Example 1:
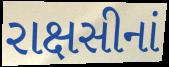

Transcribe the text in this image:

રાક્ષસીનાં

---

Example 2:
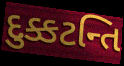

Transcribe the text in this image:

દુક્કટન્તિ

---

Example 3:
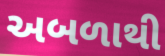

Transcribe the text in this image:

અબળાથી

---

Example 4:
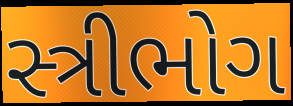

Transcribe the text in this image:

સ્ત્રીભોગ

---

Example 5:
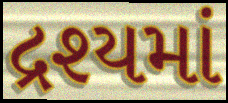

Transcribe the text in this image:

દ્રશ્યમાં